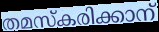
തമസ്കരിക്കാന്